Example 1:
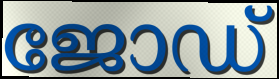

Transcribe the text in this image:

ജോഡ്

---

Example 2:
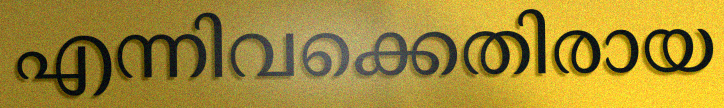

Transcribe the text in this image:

എന്നിവക്കെതിരായ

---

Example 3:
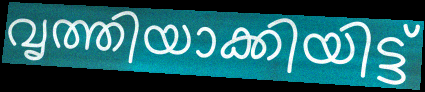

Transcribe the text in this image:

വൃത്തിയാക്കിയിട്ട്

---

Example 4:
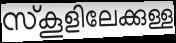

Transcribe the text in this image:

സ്കൂളിലേക്കുള്ള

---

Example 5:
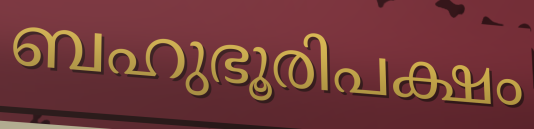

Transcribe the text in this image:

ബഹുഭൂരിപക്ഷം